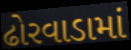
ઢોરવાડામાં